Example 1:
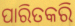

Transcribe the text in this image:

ପାରିତକରି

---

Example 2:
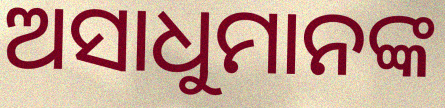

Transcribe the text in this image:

ଅସାଧୁମାନଙ୍କ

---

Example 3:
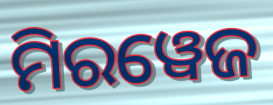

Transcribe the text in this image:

ମିରୱେଜ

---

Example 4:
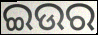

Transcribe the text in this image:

ଇଉର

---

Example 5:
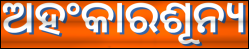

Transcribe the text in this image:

ଅହଂକାରଶୂନ୍ୟ